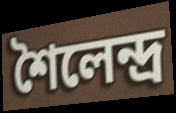
শৈলেন্দ্র